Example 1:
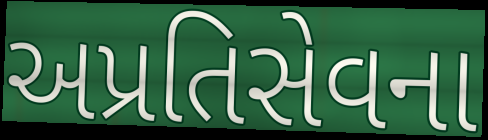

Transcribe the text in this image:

અપ્રતિસેવના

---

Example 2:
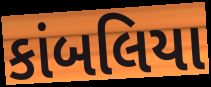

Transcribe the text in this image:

કાંબલિયા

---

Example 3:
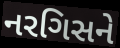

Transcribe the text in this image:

નરગિસને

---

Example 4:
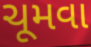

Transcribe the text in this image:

ચૂમવા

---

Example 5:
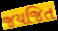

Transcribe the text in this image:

જયજિત